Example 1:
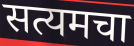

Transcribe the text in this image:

सत्यमचा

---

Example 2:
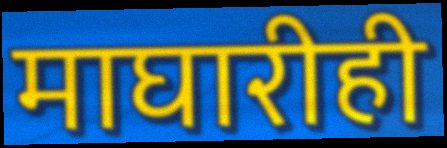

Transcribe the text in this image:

माघारीही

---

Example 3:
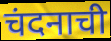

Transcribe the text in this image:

चंदनाची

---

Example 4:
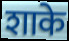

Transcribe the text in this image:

शाके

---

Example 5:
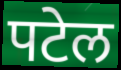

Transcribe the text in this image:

पटेल